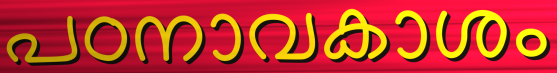
പഠനാവകാശം